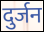
दुर्जन